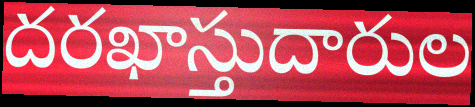
దరఖాస్తుదారుల